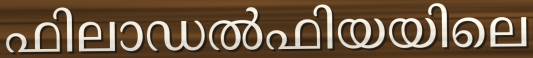
ഫിലാഡൽഫിയയിലെ